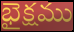
భైక్షము